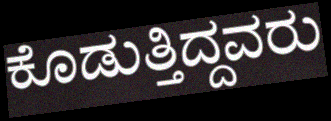
ಕೊಡುತ್ತಿದ್ದವರು